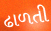
ઢાળતી